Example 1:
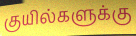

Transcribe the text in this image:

குயில்களுக்கு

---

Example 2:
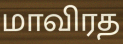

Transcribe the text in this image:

மாவிரத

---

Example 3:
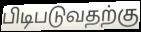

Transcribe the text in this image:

பிடிபடுவதற்கு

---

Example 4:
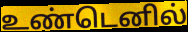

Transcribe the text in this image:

உண்டெனில்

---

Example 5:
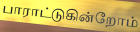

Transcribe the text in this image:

பாராட்டுகின்றோம்